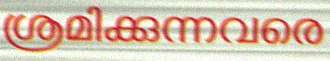
ശ്രമിക്കുന്നവരെ